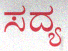
ಸದ್ಯ